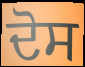
ਦੋਸ